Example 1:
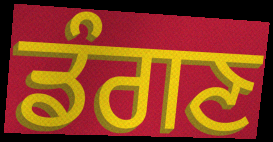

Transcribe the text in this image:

ਡੰਗਣ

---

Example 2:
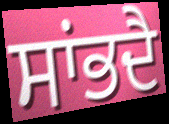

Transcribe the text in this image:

ਸਾਂਭਦੈ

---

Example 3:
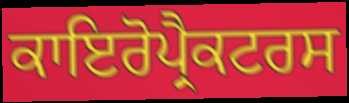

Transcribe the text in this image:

ਕਾਇਰੋਪ੍ਰੈਕਟਰਸ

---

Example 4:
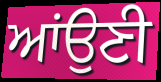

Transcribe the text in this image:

ਆਂਉਣੀ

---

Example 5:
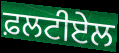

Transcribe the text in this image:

ਫ਼ਲਟੀਏਲ